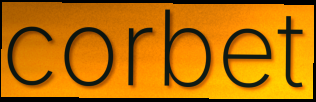
corbet